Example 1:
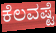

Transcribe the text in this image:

ಕೆಲವಷ್ಟೆ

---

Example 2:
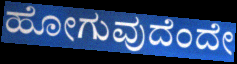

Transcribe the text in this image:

ಹೋಗುವುದೆಂದೇ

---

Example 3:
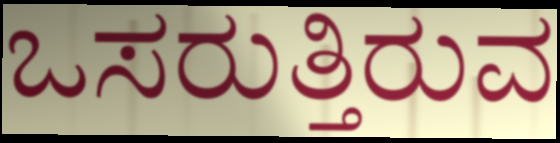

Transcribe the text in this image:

ಒಸರುತ್ತಿರುವ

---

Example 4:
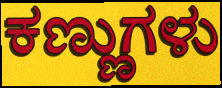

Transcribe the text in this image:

ಕಣ್ಣುಗಳು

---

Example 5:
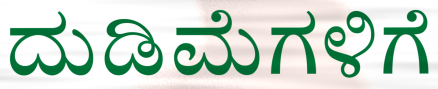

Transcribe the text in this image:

ದುಡಿಮೆಗಳಿಗೆ